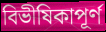
বিভীষিকাপূর্ণ